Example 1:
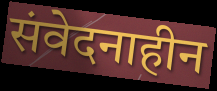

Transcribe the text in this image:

संवेदनाहीन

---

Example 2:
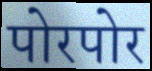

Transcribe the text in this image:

पोरपोर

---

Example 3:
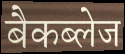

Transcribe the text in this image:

बैकब्लेज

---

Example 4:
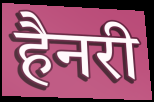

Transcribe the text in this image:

हैनरी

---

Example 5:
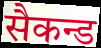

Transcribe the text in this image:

सैकन्ड